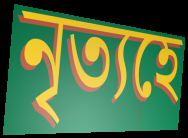
নৃত্যহে